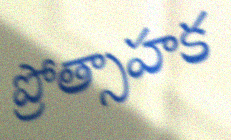
ప్రోత్సాహక